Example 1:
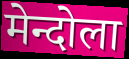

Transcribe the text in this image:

मेन्दोला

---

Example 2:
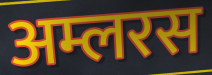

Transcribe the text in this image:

अम्लरस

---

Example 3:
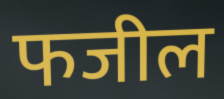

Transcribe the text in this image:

फजील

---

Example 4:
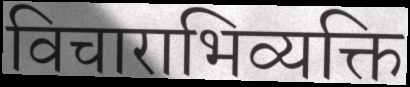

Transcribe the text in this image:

विचाराभिव्यक्ति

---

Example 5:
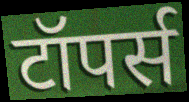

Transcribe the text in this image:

टॉपर्स